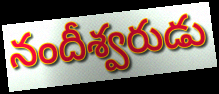
నందీశ్వరుడు